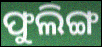
ଫୁଲିଙ୍ଗ